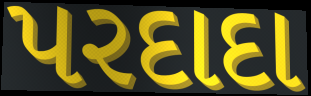
પરદાદા